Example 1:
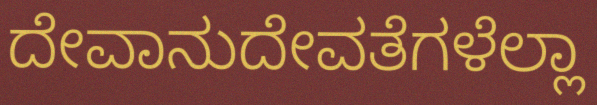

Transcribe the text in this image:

ದೇವಾನುದೇವತೆಗಳೆಲ್ಲಾ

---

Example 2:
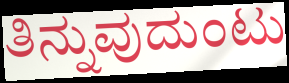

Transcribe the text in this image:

ತಿನ್ನುವುದುಂಟು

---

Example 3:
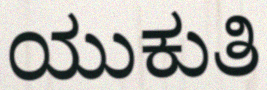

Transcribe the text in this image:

ಯುಕುತಿ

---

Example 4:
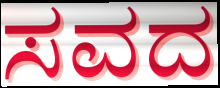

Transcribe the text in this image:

ಸವದ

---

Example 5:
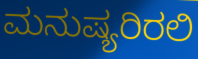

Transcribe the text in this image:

ಮನುಷ್ಯರಿರಲಿ